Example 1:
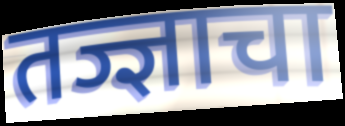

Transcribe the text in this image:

तज्ज्ञाचा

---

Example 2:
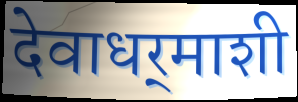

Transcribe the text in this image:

देवाधर्माशी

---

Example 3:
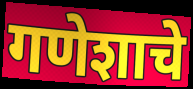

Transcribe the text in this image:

गणेशाचे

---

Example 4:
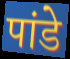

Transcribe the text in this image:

पांडे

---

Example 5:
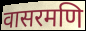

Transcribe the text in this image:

वासरमणि